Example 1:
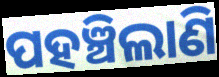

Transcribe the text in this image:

ପହଞ୍ଚିଲାଣି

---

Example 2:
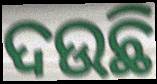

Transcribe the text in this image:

ଦଉଛି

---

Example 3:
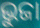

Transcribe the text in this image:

ଭୁଜା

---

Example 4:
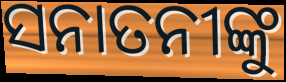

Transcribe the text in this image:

ସନାତନୀଙ୍କୁ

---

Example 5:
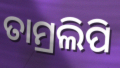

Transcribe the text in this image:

ତାମ୍ରଲିପି